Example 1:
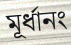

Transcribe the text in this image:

মূর্ধানং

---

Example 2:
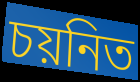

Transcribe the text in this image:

চয়নিত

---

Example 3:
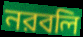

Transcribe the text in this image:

নরবলি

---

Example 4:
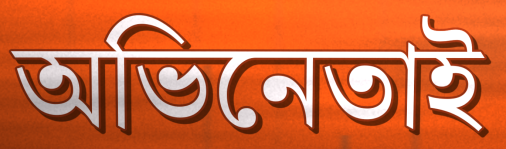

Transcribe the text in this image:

অভিনেতাই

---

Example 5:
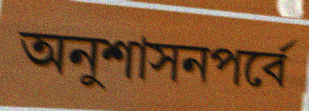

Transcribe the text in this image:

অনুশাসনপর্বে